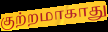
குற்றமாகாது